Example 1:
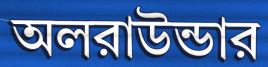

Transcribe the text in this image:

অলরাউন্ডার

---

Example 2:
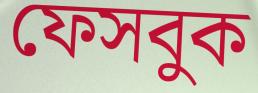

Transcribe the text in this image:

ফেসবুক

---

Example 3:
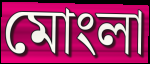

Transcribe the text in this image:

মোংলা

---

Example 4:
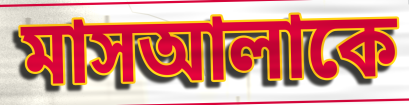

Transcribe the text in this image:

মাসআলাকে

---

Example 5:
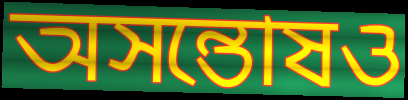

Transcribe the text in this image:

অসন্তোষও